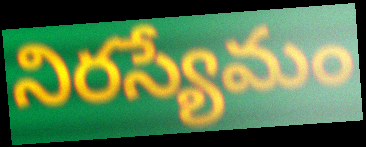
నిరస్యేమం